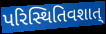
પરિસ્થિતિવશાત્